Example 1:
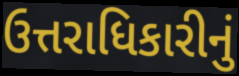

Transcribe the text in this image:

ઉત્તરાધિકારીનું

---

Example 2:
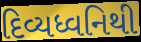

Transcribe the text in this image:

દિવ્યધ્વનિથી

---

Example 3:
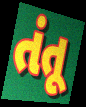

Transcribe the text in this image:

તંતૂ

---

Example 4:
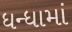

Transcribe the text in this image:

ધન્ધામાં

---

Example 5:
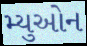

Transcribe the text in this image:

મ્યુઓન